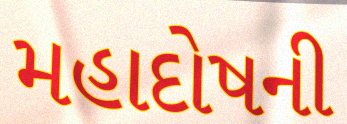
મહાદોષની